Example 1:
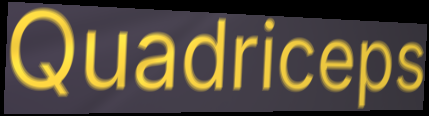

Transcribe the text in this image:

Quadriceps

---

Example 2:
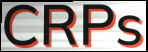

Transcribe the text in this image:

CRPs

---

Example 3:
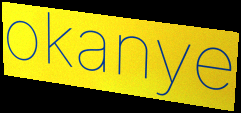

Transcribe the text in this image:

okanye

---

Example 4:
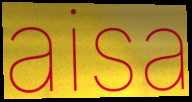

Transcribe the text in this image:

aisa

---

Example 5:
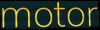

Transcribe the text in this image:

motor